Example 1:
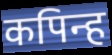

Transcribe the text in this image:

कपिन्ह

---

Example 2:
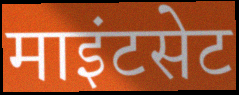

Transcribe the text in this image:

माइंटसेट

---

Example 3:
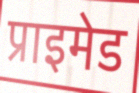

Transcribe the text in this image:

प्राइमेड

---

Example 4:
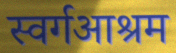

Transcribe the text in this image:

स्वर्गआश्रम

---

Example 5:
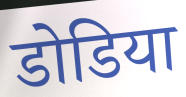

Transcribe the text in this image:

डोडिया